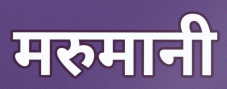
मरुमानी